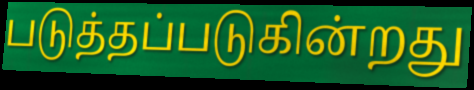
படுத்தப்படுகின்றது